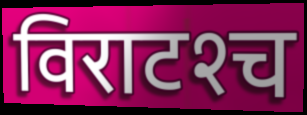
विराटश्च